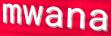
mwana